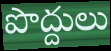
పొద్దులు